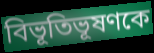
বিভূতিভূষণকে